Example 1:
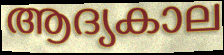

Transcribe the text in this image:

ആദ്യകാല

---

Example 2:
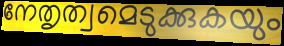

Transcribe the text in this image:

നേതൃത്വമെടുക്കുകയും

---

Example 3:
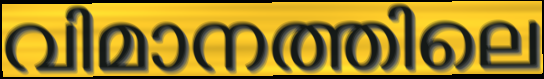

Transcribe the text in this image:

വിമാനത്തിലെ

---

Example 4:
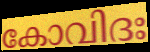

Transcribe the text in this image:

കോവിദഃ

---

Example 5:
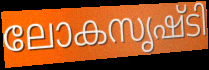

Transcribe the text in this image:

ലോകസൃഷ്ടി